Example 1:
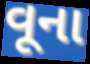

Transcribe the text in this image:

વૂના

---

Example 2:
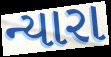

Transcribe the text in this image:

ન્યારા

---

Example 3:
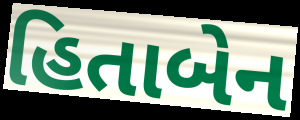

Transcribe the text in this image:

હિતાબેન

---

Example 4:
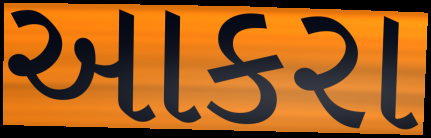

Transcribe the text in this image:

આકરા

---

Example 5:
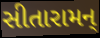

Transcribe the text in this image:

સીતારામન્